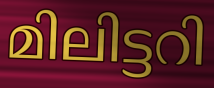
മിലിട്ടറി